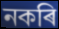
নকৰি